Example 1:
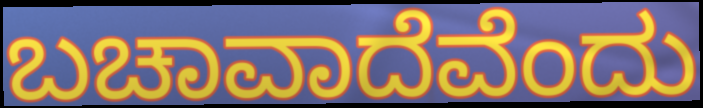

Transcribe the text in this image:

ಬಚಾವಾದೆವೆಂದು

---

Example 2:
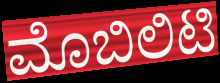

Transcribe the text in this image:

ಮೊಬಿಲಿಟಿ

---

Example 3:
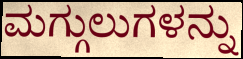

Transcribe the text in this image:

ಮಗ್ಗುಲುಗಳನ್ನು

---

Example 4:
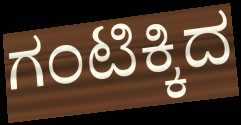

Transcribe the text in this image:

ಗಂಟಿಕ್ಕಿದ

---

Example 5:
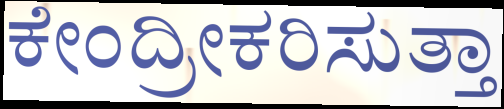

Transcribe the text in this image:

ಕೇಂದ್ರೀಕರಿಸುತ್ತಾ